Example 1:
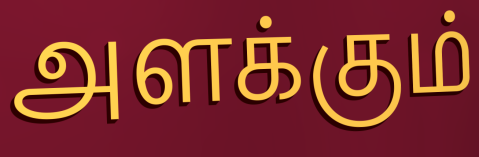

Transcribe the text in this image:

அளக்கும்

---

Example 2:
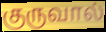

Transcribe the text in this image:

குருவால்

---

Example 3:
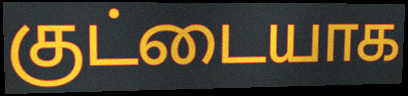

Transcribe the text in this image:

குட்டையாக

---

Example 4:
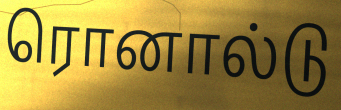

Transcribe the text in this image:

ரொனால்டு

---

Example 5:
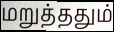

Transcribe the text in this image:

மறுத்ததும்